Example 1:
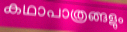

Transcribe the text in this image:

കഥാപാത്രങ്ങളും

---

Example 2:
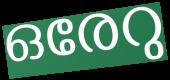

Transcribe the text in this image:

ഒരേറു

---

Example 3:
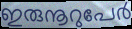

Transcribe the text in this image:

ഇരുനൂറുപേർ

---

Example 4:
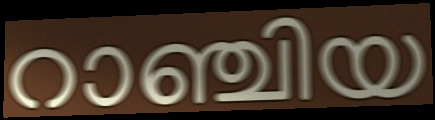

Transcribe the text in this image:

റാഞ്ചിയ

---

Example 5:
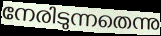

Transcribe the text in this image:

നേരിടുന്നതെന്നു